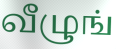
வீழுங்